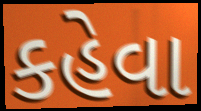
કહેવા